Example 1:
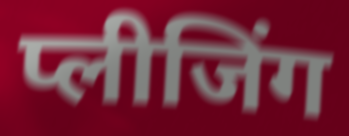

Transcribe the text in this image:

प्लीजिंग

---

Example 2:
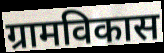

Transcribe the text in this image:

ग्रामविकास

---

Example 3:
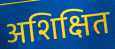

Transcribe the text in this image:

अशिक्षित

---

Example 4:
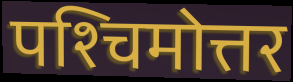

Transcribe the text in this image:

पश्चिमोत्तर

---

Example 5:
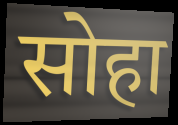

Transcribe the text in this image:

सोहा